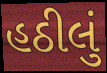
હઠીલું